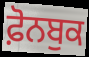
ਫ਼ੋਨਬੁਕ